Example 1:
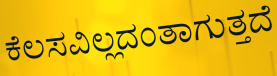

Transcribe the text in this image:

ಕೆಲಸವಿಲ್ಲದಂತಾಗುತ್ತದೆ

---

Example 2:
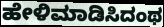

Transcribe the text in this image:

ಹೇಳಿಮಾಡಿಸಿದಂಥ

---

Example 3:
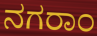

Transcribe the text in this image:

ನಗರಾಂ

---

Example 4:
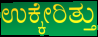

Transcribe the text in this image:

ಉಕ್ಕೇರಿತ್ತು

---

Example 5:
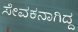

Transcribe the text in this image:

ಸೇವಕನಾಗಿದ್ದ